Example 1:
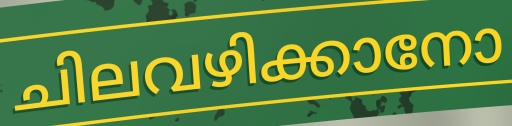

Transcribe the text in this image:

ചിലവഴിക്കാനോ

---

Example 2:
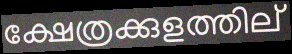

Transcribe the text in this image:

ക്ഷേത്രക്കുളത്തില്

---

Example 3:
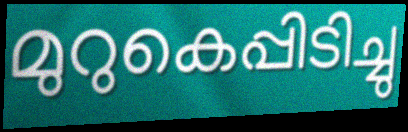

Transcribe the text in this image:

മുറുകെപ്പിടിച്ചു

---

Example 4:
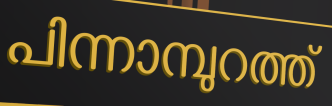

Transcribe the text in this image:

പിന്നാമ്പുറത്ത്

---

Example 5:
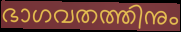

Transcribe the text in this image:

ഭാഗവതത്തിനും